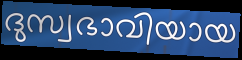
ദുസ്വഭാവിയായ